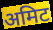
अमिट